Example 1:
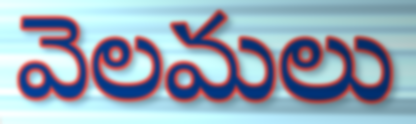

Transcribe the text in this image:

వెలమలు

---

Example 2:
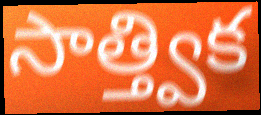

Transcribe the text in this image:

సాత్త్విక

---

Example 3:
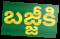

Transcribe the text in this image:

బజ్జీకి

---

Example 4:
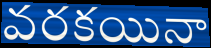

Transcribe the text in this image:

వరకయినా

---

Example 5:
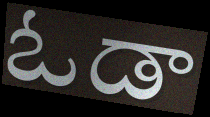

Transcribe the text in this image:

ఓడా